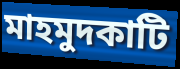
মাহমুদকাটি